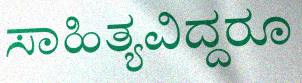
ಸಾಹಿತ್ಯವಿದ್ದರೂ